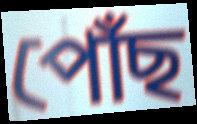
পোঁছ